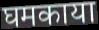
घमकाया